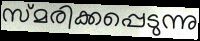
സ്മരിക്കപ്പെടുന്നു